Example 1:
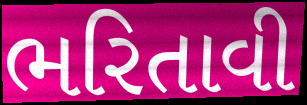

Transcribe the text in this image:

ભરિતાવી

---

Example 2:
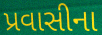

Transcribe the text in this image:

પ્રવાસીના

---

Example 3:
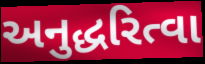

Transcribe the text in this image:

અનુદ્ધરિત્વા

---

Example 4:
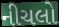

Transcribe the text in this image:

નીચલો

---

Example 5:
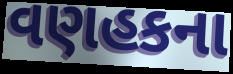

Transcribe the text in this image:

વણહકના